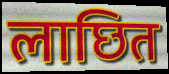
लाछित